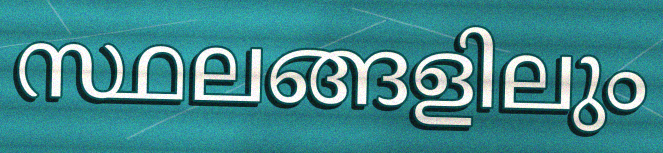
സ്ഥലങ്ങളിലും